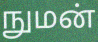
நுமன்